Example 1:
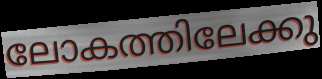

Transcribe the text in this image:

ലോകത്തിലേക്കു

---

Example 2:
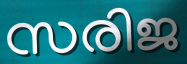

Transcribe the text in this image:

സരിജ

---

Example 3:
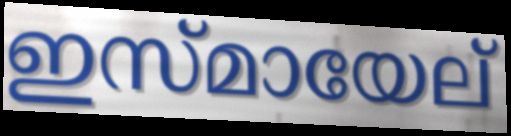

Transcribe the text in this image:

ഇസ്മായേല്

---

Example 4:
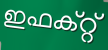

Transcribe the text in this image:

ഇഫക്റ്റ്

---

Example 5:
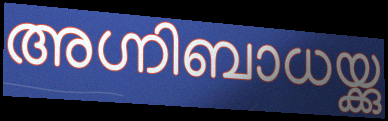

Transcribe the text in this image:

അഗ്നിബാധയ്ക്കു